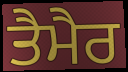
ਤੈਮੈਰ